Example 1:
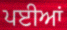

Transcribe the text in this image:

ਪਈਆਂ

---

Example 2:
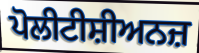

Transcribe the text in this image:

ਪੋਲੀਟੀਸ਼ੀਅਨਜ਼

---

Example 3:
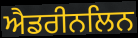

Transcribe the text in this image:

ਐਡਰੀਨਲਿਨ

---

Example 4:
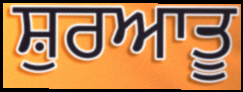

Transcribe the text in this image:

ਸ਼ੁਰਆਤੂ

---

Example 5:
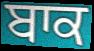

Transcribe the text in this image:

ਬਾਕ